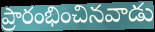
ప్రారంభించినవాడు